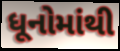
ધૂનોમાંથી